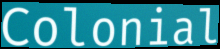
Colonial